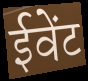
ईवेंट